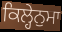
ਕਿਲ੍ਹੇਨੁਮਾ